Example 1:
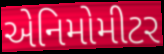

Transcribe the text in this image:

એનિમોમીટર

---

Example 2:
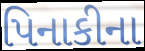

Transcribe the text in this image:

પિનાકીના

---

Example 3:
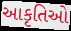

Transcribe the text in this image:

આકૃતિઓ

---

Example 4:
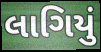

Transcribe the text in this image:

લાગિયું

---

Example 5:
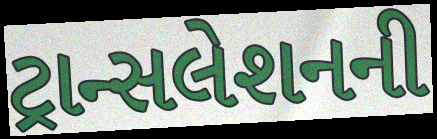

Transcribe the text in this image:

ટ્રાન્સલેશનની